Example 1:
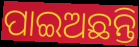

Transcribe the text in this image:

ପାଇଅଛନ୍ତି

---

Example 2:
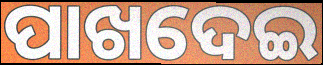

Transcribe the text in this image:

ପାଖଦେଇ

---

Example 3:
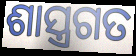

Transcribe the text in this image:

ଶାସ୍ତ୍ରଗତ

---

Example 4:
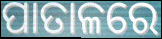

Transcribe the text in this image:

ପାତାଳରେ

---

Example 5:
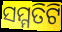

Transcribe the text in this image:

ସମ୍ମତିଟି